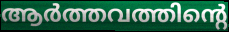
ആർത്തവത്തിന്റെ